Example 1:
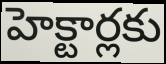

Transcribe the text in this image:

హెక్టార్లకు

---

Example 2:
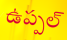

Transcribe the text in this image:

ఉప్పల్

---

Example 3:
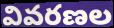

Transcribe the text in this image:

వివరణల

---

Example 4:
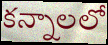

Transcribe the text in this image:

కన్నాలలో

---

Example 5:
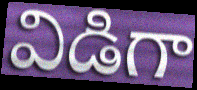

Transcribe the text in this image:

విడిగా